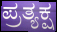
ಪ್ರತ್ಯಕ್ಷ